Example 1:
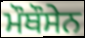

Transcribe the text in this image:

ਮੌਥੌਸੇਨ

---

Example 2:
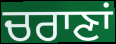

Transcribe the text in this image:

ਚਰਾਣਾਂ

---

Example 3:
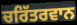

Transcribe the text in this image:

ਚਰਿੱਤਰਵਾਨ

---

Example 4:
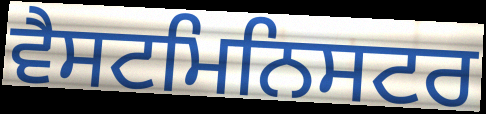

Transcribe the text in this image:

ਵੈਸਟਮਿਨਿਸਟਰ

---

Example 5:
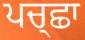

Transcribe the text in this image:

ਪਚ੍ਛਾ